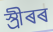
স্ত্ৰীৰৰ